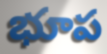
భూప